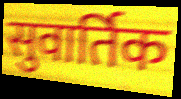
सुवार्तिक